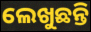
ଲେଖୁଛନ୍ତି